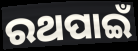
ରଥପାଇଁ